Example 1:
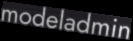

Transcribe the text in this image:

modeladmin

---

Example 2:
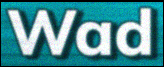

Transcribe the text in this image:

Wad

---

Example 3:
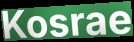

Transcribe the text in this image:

Kosrae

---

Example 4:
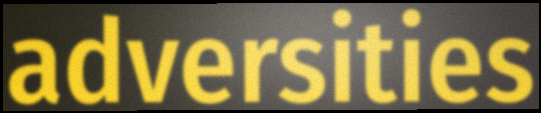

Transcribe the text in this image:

adversities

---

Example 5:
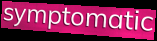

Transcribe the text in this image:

symptomatic